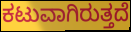
ಕಟುವಾಗಿರುತ್ತದೆ